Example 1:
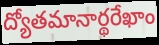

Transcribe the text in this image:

ద్యోతమానార్థరేఖాం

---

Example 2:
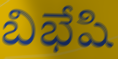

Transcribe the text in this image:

బిభేషి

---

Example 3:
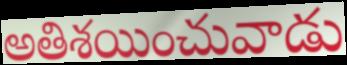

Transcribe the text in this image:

అతిశయించువాడు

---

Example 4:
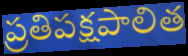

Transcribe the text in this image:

ప్రతిపక్షపాలిత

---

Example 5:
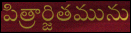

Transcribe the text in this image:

పిత్రార్జితమును